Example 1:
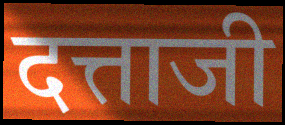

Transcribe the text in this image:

दत्ताजी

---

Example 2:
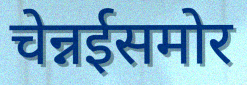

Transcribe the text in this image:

चेन्नईसमोर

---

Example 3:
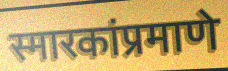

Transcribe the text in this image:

स्मारकांप्रमाणे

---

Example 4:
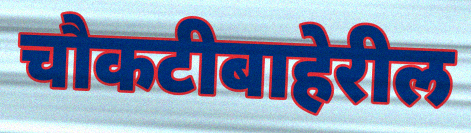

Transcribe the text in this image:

चौकटीबाहेरील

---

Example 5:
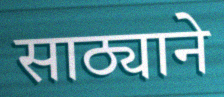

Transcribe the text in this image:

साठ्याने